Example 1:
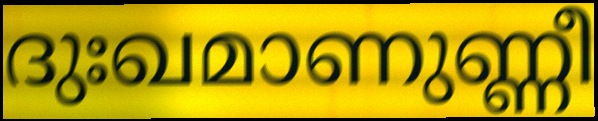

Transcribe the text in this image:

ദുഃഖമാണുണ്ണീ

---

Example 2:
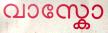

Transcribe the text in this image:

വാസ്കോ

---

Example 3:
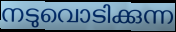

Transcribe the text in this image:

നടുവൊടിക്കുന്ന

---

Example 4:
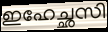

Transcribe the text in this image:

ഇഹേച്ഛസി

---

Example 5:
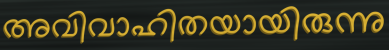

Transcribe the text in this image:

അവിവാഹിതയായിരുന്നു